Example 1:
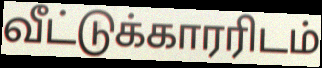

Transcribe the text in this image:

வீட்டுக்காரரிடம்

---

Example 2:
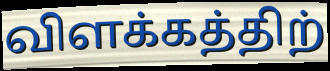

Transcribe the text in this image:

விளக்கத்திற்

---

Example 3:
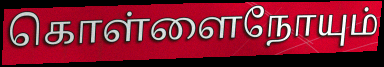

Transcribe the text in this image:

கொள்ளைநோயும்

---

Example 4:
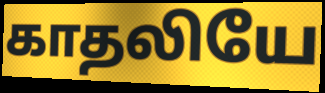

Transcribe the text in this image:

காதலியே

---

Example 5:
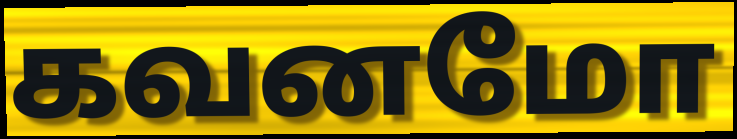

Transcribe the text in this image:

கவனமோ